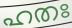
ഹതഃ